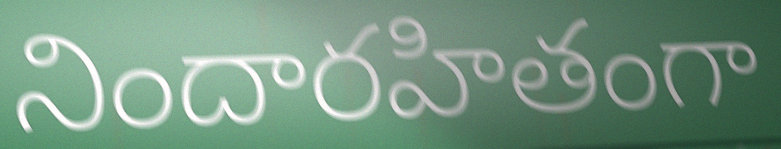
నిందారహితంగా